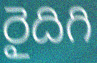
రైదిగి